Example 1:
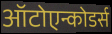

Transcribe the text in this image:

ऑटोएन्कोडर्स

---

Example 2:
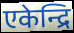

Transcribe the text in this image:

एकेन्द्रि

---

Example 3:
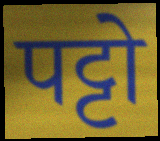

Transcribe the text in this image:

पट्टो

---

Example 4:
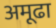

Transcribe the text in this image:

अमूढा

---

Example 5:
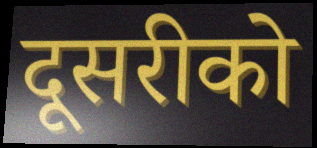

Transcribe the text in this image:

दूसरीको